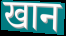
खान